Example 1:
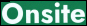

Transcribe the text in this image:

Onsite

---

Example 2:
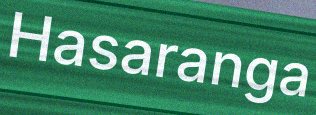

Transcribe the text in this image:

Hasaranga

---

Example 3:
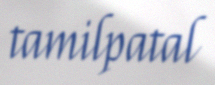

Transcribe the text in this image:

tamilpatal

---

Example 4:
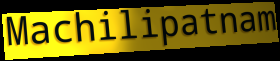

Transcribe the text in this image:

Machilipatnam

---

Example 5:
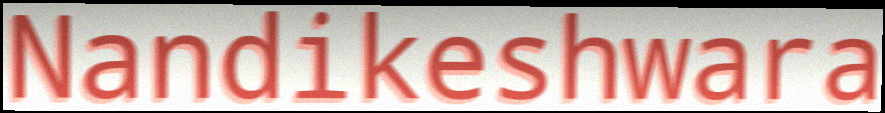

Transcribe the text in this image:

Nandikeshwara